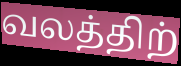
வலத்திற்